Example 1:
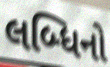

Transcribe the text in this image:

લબ્ધિનો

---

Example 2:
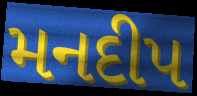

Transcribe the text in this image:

મનદીપ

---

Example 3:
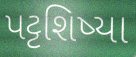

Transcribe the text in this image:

પટ્ટશિષ્યા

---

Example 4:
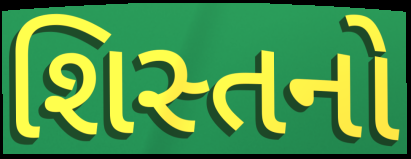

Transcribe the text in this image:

શિસ્તનો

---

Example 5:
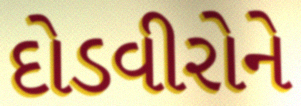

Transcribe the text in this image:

દોડવીરોને